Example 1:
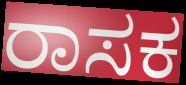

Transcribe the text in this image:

ರಾಸಕ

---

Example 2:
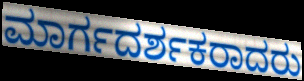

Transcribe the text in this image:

ಮಾರ್ಗದರ್ಶಕರಾದರು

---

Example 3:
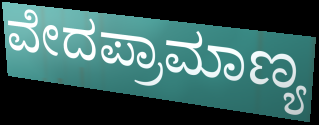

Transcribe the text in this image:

ವೇದಪ್ರಾಮಾಣ್ಯ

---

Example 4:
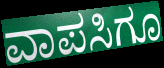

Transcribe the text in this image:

ವಾಪಸಿಗೂ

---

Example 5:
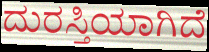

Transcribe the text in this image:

ದುರಸ್ತಿಯಾಗಿದೆ